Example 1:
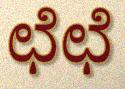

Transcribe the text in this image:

ಛೆಛೆ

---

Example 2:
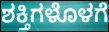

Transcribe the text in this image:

ಶಕ್ತಿಗಳೊಳಗೆ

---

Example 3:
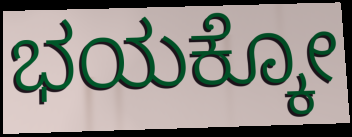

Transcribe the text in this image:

ಭಯಕ್ಕೋ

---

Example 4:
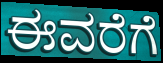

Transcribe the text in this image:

ಈವರೆಗೆ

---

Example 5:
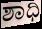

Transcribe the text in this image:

ಶಾಧಿ